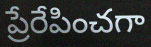
ప్రేరేపించగా